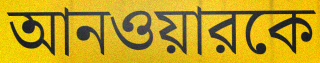
আনওয়ারকে